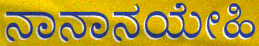
ನಾನಾನಯೇಹಿ